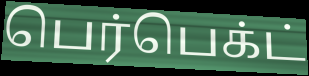
பெர்பெக்ட்